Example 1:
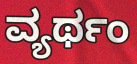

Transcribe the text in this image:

ವ್ಯರ್ಥಂ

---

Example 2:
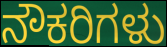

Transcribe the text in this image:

ನೌಕರಿಗಳು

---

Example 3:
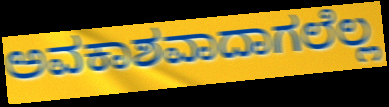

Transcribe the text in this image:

ಅವಕಾಶವಾದಾಗಲೆಲ್ಲ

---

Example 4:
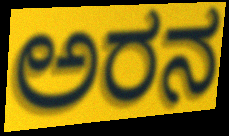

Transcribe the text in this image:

ಅರನ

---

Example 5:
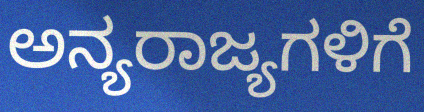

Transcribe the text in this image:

ಅನ್ಯರಾಜ್ಯಗಳಿಗೆ